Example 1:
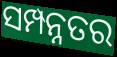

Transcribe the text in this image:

ସମ୍ପନ୍ନତର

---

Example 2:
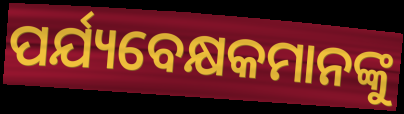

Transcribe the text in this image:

ପର୍ଯ୍ୟବେକ୍ଷକମାନଙ୍କୁ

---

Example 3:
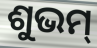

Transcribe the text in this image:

ଶୁଭମ୍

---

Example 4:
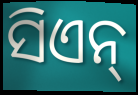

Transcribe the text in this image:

ସିଏନ୍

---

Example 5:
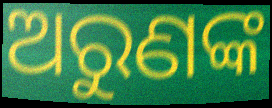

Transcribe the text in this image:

ଅରୁଣଙ୍କ